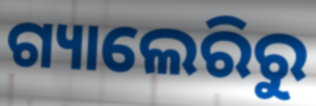
ଗ୍ୟାଲେରିରୁ